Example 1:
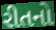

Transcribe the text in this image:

રીતનો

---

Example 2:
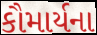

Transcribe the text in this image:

કૌમાર્યના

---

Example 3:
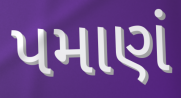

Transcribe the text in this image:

પમાણં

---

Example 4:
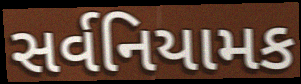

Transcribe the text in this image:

સર્વનિયામક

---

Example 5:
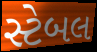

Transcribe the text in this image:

સ્ટેબલ